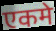
एकमे